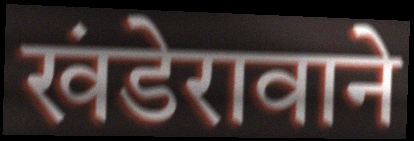
खंडेरावाने